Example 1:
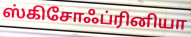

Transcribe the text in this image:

ஸ்கிசோஃப்ரினியா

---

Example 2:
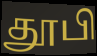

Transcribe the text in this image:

தூபி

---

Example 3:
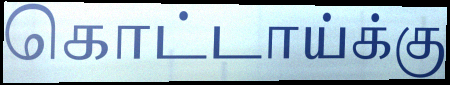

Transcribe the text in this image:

கொட்டாய்க்கு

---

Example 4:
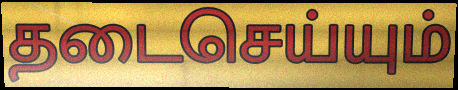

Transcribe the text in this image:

தடைசெய்யும்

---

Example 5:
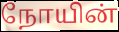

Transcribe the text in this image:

நோயின்